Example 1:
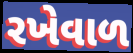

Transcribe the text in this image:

રખેવાળ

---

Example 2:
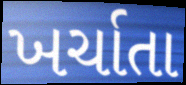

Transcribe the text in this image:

ખર્ચાતા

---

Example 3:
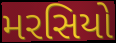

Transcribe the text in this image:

મરસિયો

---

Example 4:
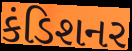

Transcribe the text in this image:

કંડિશનર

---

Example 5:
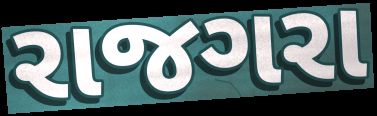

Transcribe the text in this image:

રાજગરા